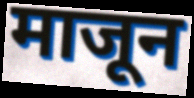
माजून